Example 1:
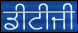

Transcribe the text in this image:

ਡੀਟੀਜੀ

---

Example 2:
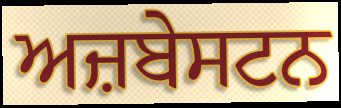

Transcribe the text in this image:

ਅਜ਼ਬੇਸਟਨ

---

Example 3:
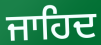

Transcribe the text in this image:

ਜਾਹਿਦ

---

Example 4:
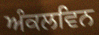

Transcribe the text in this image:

ਅੰਕਲਵਿਨ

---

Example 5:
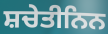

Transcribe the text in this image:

ਸ਼ਚੇਤੀਨਿਨ